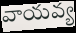
వాయవ్య